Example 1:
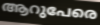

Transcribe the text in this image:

ആറുപേരെ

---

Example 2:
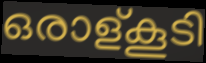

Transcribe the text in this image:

ഒരാള്കൂടി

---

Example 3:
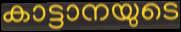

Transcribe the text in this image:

കാട്ടാനയുടെ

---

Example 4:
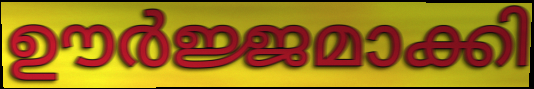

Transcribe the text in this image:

ഊർജ്ജമാക്കി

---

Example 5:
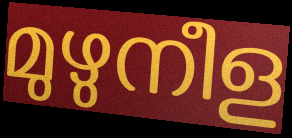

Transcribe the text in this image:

മുഴുനീള